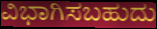
ವಿಭಾಗಿಸಬಹುದು